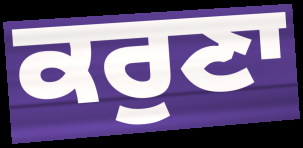
ਕਰੁਣਾ